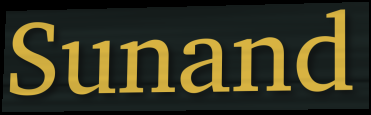
Sunand